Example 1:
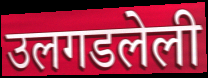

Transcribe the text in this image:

उलगडलेली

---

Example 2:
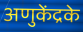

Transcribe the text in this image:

अणुकेंद्रके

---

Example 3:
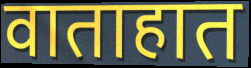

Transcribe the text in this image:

वाताहात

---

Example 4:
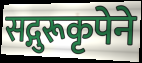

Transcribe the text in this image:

सद्गुरूकृपेने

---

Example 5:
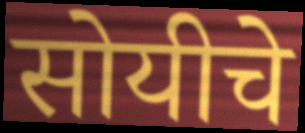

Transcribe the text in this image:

सोयीचे